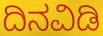
ದಿನವಿಡಿ